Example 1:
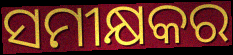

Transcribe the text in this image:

ସମୀକ୍ଷକର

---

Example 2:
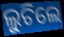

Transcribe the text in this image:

ଲୁଚିଲେ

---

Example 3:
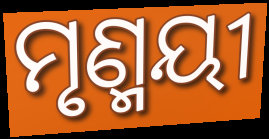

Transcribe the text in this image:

ମୃଣ୍ମୟୀ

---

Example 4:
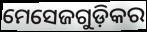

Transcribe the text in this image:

ମେସେଜଗୁଡ଼ିକର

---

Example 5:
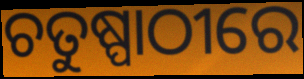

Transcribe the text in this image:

ଚତୁଷ୍ପାଠୀରେ